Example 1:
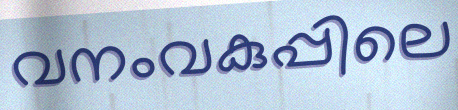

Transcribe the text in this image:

വനംവകുപ്പിലെ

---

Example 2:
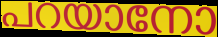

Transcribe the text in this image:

പറയാനോ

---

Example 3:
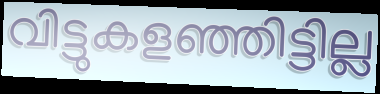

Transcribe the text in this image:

വിട്ടുകളഞ്ഞിട്ടില്ല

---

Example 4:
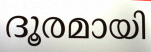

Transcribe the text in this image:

ദൂരമായി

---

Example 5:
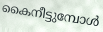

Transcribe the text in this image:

കൈനീട്ടുമ്പോൾ